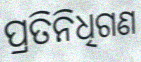
ପ୍ରତିନିଧିଗଣ